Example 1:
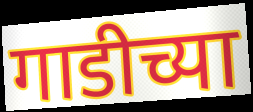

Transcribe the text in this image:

गाडीच्या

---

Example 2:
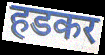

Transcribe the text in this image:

हडकर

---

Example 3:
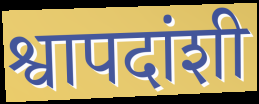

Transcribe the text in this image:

श्वापदांशी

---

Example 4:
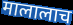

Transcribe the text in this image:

मालालाच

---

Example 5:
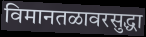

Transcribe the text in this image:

विमानतळावरसुद्धा